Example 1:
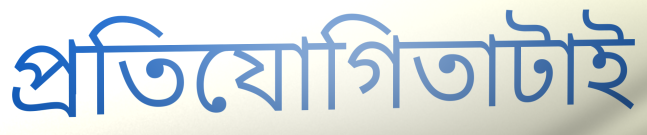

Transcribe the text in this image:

প্রতিযোগিতাটাই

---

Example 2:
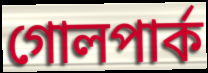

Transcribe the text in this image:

গোলপার্ক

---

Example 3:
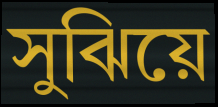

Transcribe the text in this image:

সুঝিয়ে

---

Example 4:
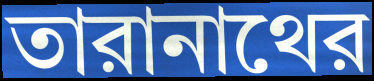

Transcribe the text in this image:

তারানাথের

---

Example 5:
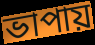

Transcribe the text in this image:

ভাপায়